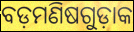
ବଡ଼ମଣିଷଗୁଡ଼ାକ